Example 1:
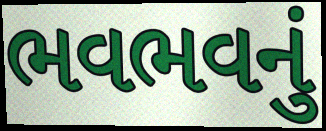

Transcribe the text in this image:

ભવભવનું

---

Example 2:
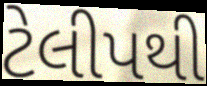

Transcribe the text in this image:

ટેલીપથી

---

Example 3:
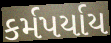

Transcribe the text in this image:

કર્મપર્યાય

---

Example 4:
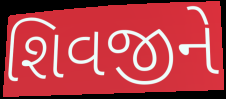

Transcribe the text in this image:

શિવજીને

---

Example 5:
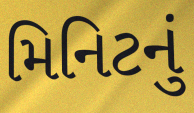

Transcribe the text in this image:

મિનિટનું